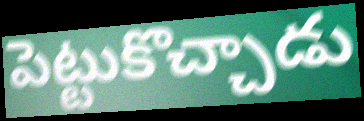
పెట్టుకొచ్చాడు